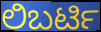
ಲಿಬರ್ಟಿ